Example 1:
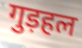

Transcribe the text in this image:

गुड़हल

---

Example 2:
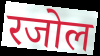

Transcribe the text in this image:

रजोल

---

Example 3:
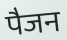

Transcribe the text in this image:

पैजन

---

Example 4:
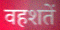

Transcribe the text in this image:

वहशतें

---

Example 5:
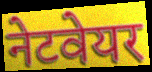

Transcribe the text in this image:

नेटवेयर